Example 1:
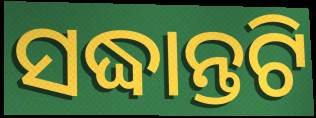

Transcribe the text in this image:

ସଦ୍ଧାନ୍ତଟି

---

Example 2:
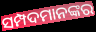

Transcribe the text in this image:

ସମ୍ପଦମାନଙ୍କର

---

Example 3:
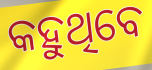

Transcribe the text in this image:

କହୁଥିବେ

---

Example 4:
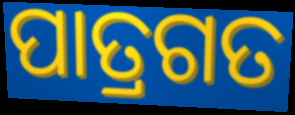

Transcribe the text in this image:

ପାତ୍ରଗତ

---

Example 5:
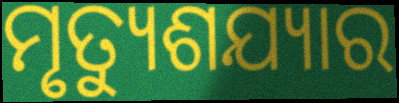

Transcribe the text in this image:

ମୃତ୍ୟୁଶଯ୍ୟାର